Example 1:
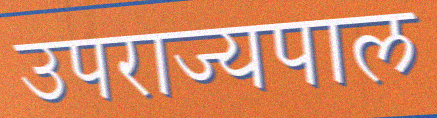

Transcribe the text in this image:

उपराज्यपाल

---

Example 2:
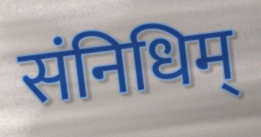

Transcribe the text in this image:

संनिधिम्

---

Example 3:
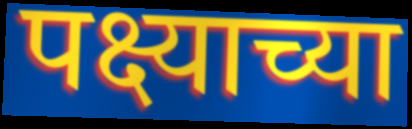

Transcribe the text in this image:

पक्ष्याच्या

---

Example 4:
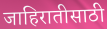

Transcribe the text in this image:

जाहिरातीसाठी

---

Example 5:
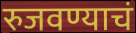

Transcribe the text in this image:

रुजवण्याचं